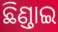
ଛିଣ୍ଡାଇ